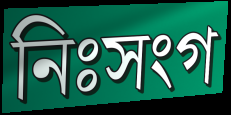
নিঃসংগ